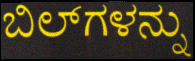
ಬಿಲ್‌ಗಳನ್ನು